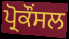
ਪ੍ਰੋਕੌਂਸਲ